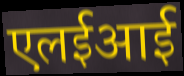
एलईआई